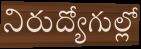
నిరుద్యోగుల్లో